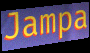
Jampa